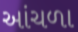
આંચળા